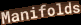
Manifolds